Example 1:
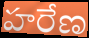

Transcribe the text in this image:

హరేణ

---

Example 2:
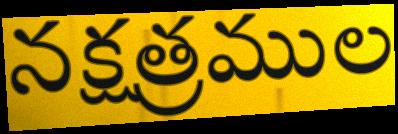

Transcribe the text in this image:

నక్షత్రముల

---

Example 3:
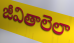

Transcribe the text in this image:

జీవితాలెలా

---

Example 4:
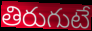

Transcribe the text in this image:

తిరుగుటే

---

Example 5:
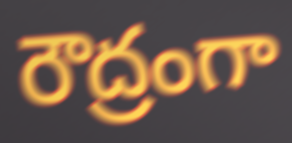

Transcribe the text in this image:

రౌద్రంగా